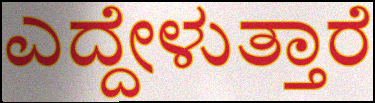
ಎದ್ದೇಳುತ್ತಾರೆ